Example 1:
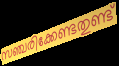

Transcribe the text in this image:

സഞ്ചരിക്കേണ്ടതുണ്ട്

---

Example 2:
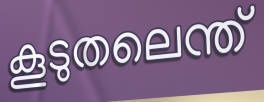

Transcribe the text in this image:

കൂടുതലെന്ത്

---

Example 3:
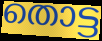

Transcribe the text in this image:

തൊട്ട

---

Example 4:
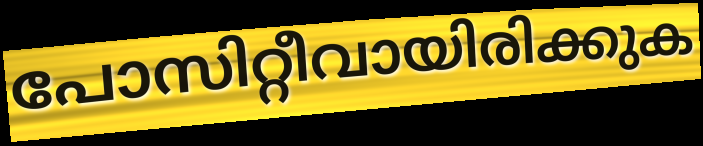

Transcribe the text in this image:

പോസിറ്റീവായിരിക്കുക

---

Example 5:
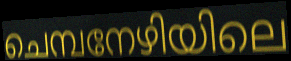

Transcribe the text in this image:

ചെമ്പനേഴിയിലെ